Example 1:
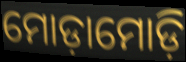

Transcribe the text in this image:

ମୋଡ଼ାମୋଡ଼ି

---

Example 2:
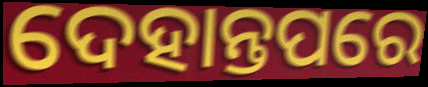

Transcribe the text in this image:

ଦେହାନ୍ତପରେ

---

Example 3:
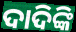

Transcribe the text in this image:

ଦାଦିଙ୍କି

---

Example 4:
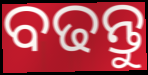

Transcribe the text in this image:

ବଢନ୍ତୁ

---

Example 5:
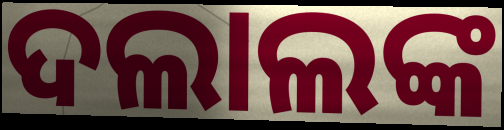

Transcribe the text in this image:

ଦଲାଲଙ୍କ